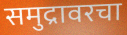
समुद्रावरचा